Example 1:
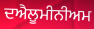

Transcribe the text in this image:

ਦਐਲੂਮੀਨੀਅਮ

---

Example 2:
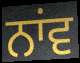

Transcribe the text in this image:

ਨਾਂਵ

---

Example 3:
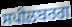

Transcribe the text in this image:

ਸਪੀਲਬਰਗ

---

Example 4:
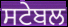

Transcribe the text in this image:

ਸਟੇਬਲ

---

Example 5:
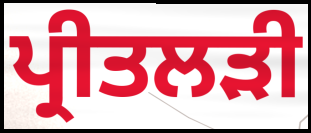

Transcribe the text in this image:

ਪ੍ਰੀਤਲੜੀ